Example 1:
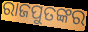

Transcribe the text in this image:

ରାଜପୁତଙ୍କର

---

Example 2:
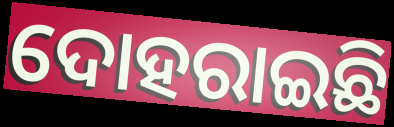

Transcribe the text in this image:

ଦୋହରାଇଛି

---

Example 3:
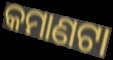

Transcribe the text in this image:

କମାଣଟା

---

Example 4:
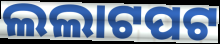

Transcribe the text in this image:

ଲଲାଟପଟ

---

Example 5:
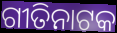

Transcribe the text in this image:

ଗୀତିନାଟକ